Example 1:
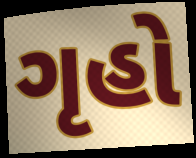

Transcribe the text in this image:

ગૃહો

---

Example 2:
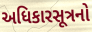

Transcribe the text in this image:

અધિકારસૂત્રનો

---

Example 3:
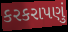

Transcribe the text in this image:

કરકરાપણું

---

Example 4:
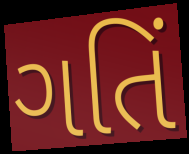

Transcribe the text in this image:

ગતિં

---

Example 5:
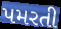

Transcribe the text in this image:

પમરતી